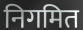
निगमित